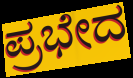
ಪ್ರಭೇದ